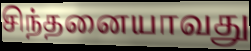
சிந்தனையாவது